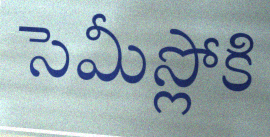
సెమీస్లోకి